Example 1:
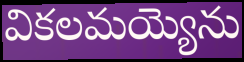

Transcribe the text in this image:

వికలమయ్యెను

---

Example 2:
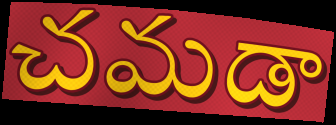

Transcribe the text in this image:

చమడా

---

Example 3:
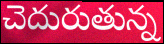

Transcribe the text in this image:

చెదురుతున్న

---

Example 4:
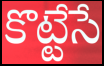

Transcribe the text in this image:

కొట్టేసే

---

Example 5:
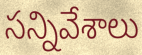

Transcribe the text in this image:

సన్నివేశాలు